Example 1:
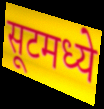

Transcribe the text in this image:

सूटमध्ये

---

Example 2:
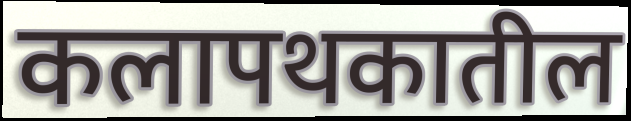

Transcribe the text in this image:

कलापथकातील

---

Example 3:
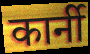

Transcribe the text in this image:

कार्नी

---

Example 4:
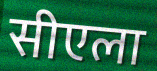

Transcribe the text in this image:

सीएला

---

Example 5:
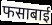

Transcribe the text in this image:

फसाबाई